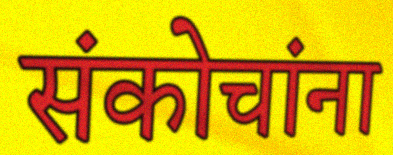
संकोचांना